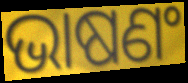
ଭାଷଣଂ